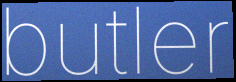
butler